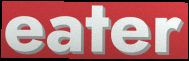
eater